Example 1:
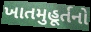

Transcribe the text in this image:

ખાતમુહૂર્તનો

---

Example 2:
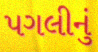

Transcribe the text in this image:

પગલીનું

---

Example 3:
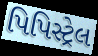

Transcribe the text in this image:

પિપિસ્ટ્રેલ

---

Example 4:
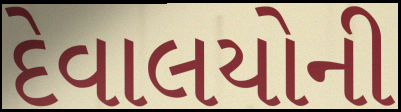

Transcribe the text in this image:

દેવાલયોની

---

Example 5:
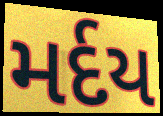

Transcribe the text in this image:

મર્દય